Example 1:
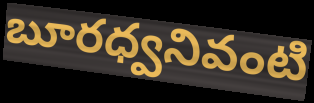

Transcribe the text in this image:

బూరధ్వనివంటి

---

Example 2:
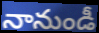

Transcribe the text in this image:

నానుండీ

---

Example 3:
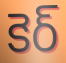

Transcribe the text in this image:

కెర్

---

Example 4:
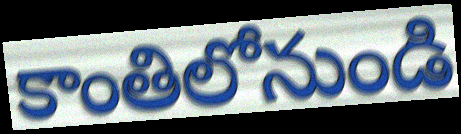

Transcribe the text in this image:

కాంతిలోనుండి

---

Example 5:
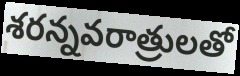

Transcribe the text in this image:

శరన్నవరాత్రులతో